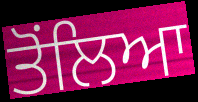
ਤੋਂਲਿਆ